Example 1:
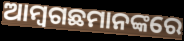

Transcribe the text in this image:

ଆମ୍ବଗଛମାନଙ୍କରେ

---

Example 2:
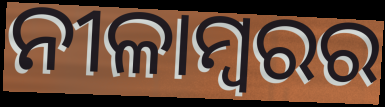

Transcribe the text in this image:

ନୀଳାମ୍ବରର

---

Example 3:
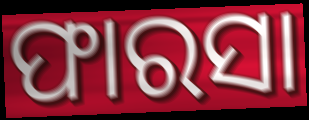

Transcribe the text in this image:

ଫାରସା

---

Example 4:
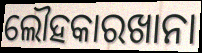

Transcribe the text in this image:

ଲୌହକାରଖାନା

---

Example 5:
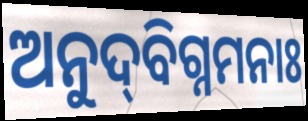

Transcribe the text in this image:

ଅନୁଦ୍‌ବିଗ୍ନମନାଃ